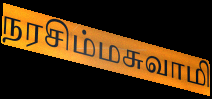
நரசிம்மசுவாமி